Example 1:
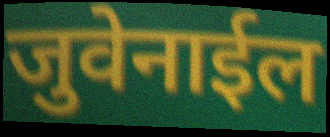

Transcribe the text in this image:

जुवेनाईल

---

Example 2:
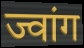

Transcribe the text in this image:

ज्वांग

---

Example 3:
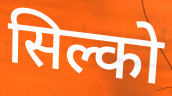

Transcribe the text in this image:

सिल्को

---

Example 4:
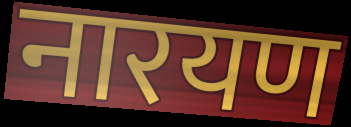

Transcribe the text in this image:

नारयण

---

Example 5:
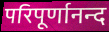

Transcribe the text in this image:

परिपूर्णानन्द